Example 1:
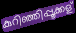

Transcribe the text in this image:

കുറിഞ്ഞിപ്പൂക്കള്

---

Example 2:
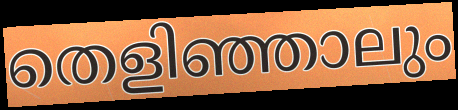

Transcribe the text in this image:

തെളിഞ്ഞാലും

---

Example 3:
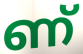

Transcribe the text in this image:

ണ്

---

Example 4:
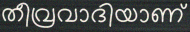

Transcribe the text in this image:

തീവ്രവാദിയാണ്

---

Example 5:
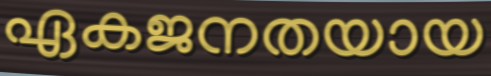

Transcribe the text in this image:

ഏകജനതയായ